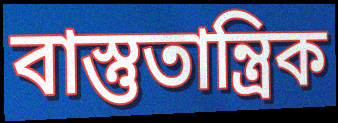
বাস্তুতান্ত্রিক